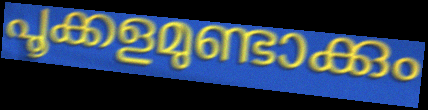
പൂക്കളമുണ്ടാക്കും